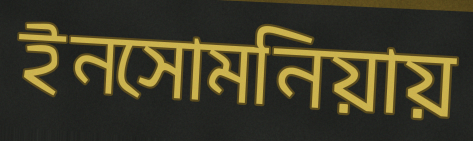
ইনসোমনিয়ায়